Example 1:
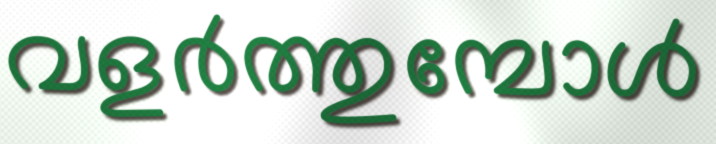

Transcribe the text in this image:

വളർത്തുമ്പോൾ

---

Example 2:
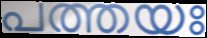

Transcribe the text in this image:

പത്തയഃ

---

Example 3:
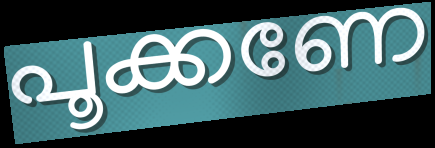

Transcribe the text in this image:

പൂക്കണേ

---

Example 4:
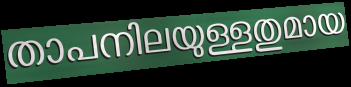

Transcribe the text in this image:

താപനിലയുള്ളതുമായ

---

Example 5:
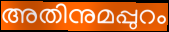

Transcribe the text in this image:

അതിനുമപ്പുറം